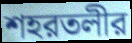
শহরতলীর